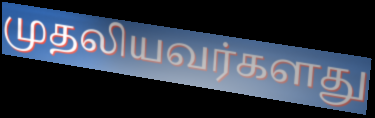
முதலியவர்களது